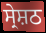
ਸ੍ਰੇਸ਼ਠ